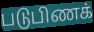
படுபிணக்